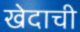
खेदाची